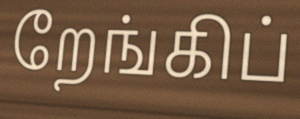
றேங்கிப்